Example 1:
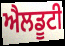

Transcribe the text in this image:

ਐਲਡੂਟੀ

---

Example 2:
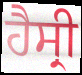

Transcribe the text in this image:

ਹੈਸ੍ਰੀ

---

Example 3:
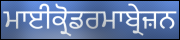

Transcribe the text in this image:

ਮਾਈਕ੍ਰੋਡਰਮਾਬ੍ਰੇਜ਼ਨ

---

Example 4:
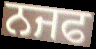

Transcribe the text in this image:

ਨਜਫ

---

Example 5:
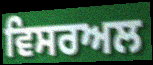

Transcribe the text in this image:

ਵਿਸਰਅਲ